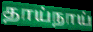
தாய்நாய்